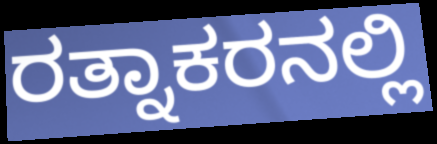
ರತ್ನಾಕರನಲ್ಲಿ